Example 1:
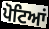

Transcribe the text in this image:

ਪੋਟਿਆਂ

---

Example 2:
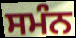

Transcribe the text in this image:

ਸਮੰਨ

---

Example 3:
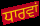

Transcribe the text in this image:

ਧਾਰਵਾਂ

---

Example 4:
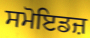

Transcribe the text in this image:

ਸਮੋਇਡਜ਼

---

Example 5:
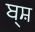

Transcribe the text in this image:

ਬ੍ਸ਼